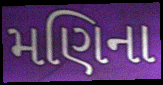
મણિના